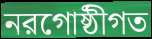
নরগোষ্ঠীগত